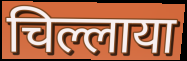
चिल्लाया